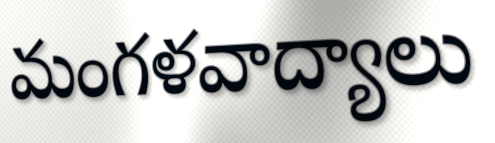
మంగళవాద్యాలు